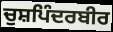
ਚੁਸ਼ਪਿੰਦਰਬੀਰ